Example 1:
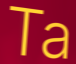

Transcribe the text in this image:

Ta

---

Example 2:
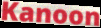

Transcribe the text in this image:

Kanoon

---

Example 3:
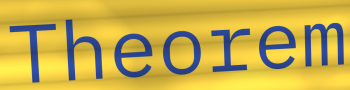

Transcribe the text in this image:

Theorem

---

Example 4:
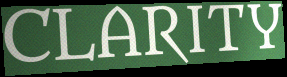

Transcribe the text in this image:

CLARITY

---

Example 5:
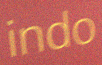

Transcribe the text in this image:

indo